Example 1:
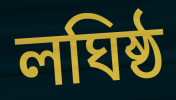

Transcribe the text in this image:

লঘিষ্ঠ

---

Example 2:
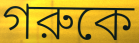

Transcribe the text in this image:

গরুকে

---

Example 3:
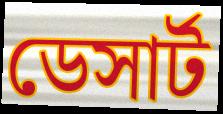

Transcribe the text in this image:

ডেসার্ট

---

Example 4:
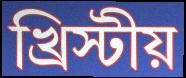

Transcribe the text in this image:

খ্রিস্টীয়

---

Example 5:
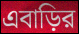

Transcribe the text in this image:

এবাড়ির